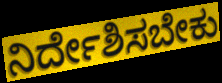
ನಿರ್ದೇಶಿಸಬೇಕು